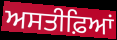
ਅਸਤੀਫ਼ਿਆਂ